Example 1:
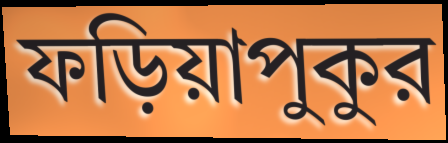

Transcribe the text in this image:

ফড়িয়াপুকুর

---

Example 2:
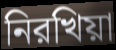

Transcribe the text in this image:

নিরখিয়া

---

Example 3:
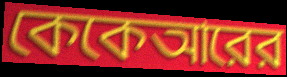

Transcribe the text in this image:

কেকেআরের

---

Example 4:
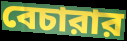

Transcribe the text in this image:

বেচারার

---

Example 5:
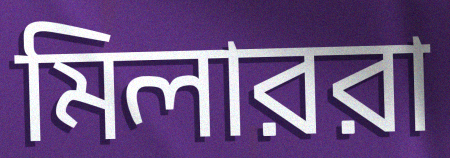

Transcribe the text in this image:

মিলাররা